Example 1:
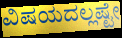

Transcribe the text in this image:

ವಿಷಯದಲ್ಲಷ್ಟೇ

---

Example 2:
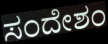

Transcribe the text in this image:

ಸಂದೇಶಂ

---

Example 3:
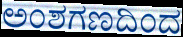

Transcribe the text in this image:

ಅಂಶಗಣದಿಂದ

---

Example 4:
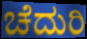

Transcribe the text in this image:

ಚೆದುರಿ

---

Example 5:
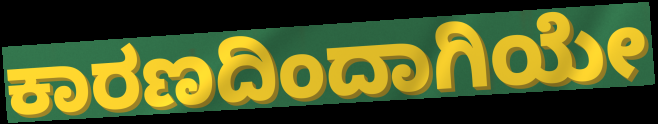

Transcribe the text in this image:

ಕಾರಣದಿಂದಾಗಿಯೇ